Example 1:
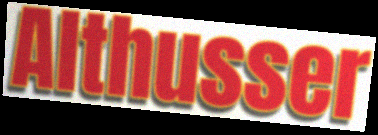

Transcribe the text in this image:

Althusser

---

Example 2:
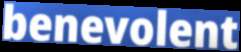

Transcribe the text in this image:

benevolent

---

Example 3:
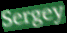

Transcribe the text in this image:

Sergey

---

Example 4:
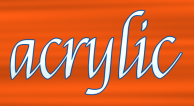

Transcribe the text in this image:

acrylic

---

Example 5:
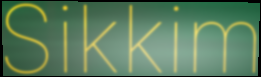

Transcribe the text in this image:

Sikkim